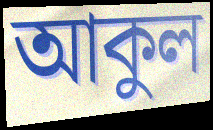
আকুল